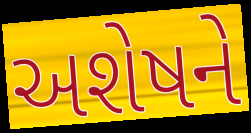
અશેષને